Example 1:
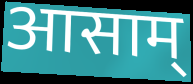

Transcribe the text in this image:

आसाम्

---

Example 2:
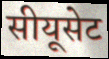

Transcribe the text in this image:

सीयूसेट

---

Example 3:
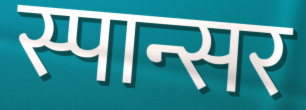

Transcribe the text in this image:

स्पान्सर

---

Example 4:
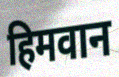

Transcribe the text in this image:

हिमवान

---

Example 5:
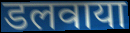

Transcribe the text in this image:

डलवाया